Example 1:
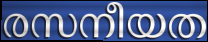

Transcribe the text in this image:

രസനീയത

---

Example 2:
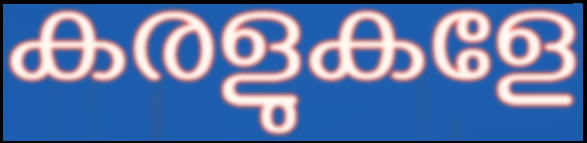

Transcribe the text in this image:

കരളുകളേ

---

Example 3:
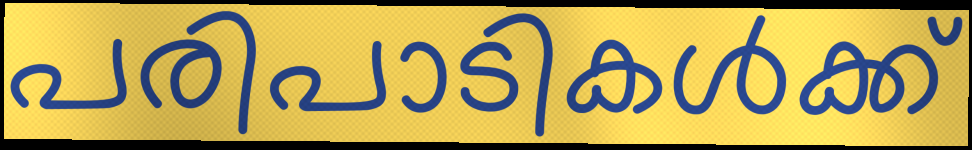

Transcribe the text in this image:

പരിപാടികൾക്ക്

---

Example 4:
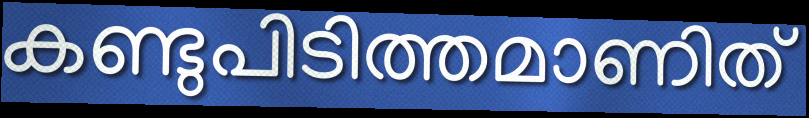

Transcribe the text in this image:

കണ്ടുപിടിത്തമാണിത്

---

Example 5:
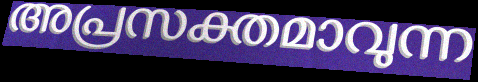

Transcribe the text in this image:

അപ്രസക്തമാവുന്ന